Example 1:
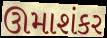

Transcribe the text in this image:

ઊમાશંકર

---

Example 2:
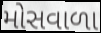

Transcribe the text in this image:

મોસવાળા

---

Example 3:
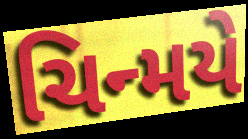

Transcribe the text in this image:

ચિન્મયે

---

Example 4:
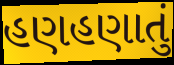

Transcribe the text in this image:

હણહણાતું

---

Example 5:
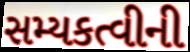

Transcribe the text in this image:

સમ્યકત્વીની